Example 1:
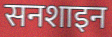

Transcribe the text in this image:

सनशाइन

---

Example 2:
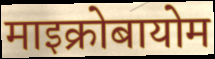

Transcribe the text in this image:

माइक्रोबायोम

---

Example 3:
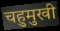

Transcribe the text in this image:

चहुमुखी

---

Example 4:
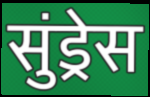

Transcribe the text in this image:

सुंड्रेस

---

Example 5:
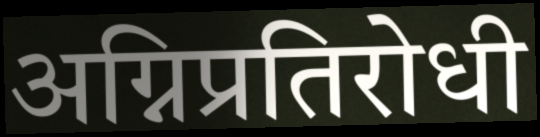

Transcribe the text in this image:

अग्निप्रतिरोधी